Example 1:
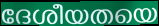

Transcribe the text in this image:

ദേശീയതയെ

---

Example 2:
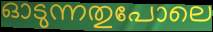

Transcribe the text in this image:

ഓടുന്നതുപോലെ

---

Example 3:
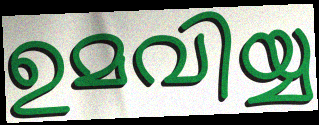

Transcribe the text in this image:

ഉമവിയ്യ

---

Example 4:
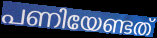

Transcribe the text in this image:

പണിയേണ്ടത്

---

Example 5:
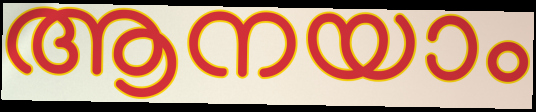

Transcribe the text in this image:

ആനയാം